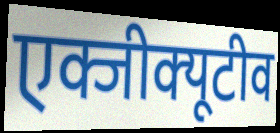
एक्जीक्यूटीव